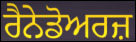
ਰੈਨੇਡੋਅਰਜ਼